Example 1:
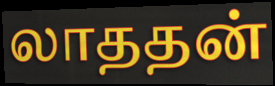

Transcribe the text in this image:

லாததன்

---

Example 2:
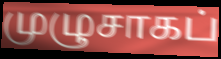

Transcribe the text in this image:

முழுசாகப்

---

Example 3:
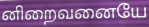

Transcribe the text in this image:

னிறைவனையே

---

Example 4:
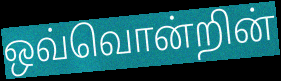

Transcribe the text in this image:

ஒவ்வொன்றின்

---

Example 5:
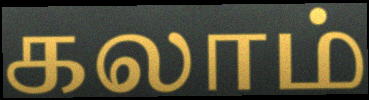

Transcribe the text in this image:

கலாம்